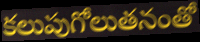
కలుపుగోలుతనంతో